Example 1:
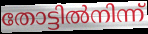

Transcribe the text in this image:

തോട്ടിൽനിന്ന്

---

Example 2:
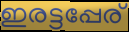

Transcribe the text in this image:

ഇരട്ടപ്പേര്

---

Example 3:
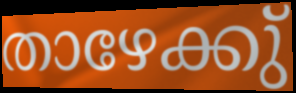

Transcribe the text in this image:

താഴേക്കു്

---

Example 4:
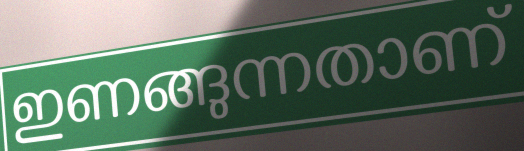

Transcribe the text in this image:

ഇണങ്ങുന്നതാണ്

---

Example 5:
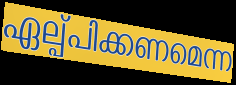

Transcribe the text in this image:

ഏല്പ്പിക്കണമെന്ന